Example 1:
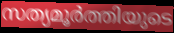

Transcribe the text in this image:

സത്യമൂർത്തിയുടെ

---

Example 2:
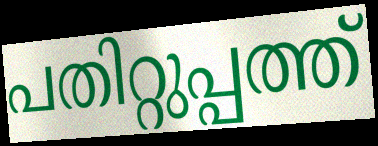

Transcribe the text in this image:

പതിറ്റുപ്പത്ത്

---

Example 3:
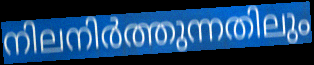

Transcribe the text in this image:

നിലനിർത്തുന്നതിലും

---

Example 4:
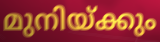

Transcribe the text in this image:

മുനിയ്ക്കും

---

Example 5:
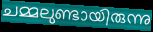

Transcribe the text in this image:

ചമ്മലുണ്ടായിരുന്നു